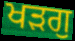
ਖੜਗੁ